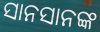
ସାନସାନଙ୍କ